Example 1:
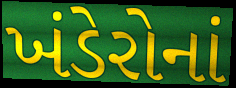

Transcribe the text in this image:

ખંડેરોનાં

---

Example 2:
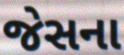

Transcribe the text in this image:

જેસના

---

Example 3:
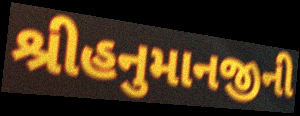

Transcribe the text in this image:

શ્રીહનુમાનજીની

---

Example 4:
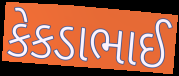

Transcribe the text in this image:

કેકડાભાઈ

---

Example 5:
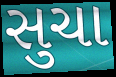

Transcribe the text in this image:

સુચા